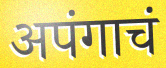
अपंगाचं